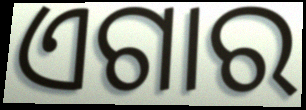
ଏଗାର